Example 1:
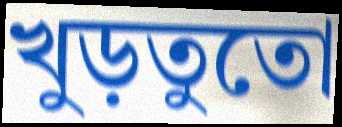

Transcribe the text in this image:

খুড়তুতো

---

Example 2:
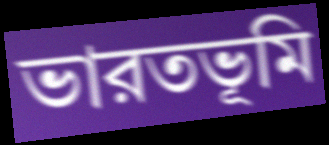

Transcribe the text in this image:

ভারতভূমি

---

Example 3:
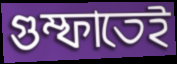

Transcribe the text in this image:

গুম্ফাতেই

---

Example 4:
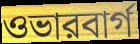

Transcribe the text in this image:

ওভারবার্গ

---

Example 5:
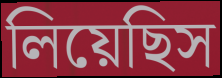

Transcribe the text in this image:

লিয়েছিস